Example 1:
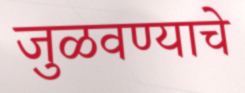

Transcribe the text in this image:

जुळवण्याचे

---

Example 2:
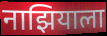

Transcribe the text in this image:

नाझियाला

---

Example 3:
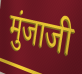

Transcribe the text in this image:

मुंजाजी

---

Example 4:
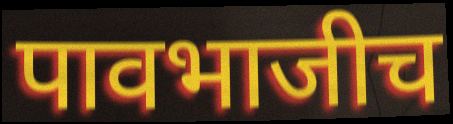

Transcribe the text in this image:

पावभाजीच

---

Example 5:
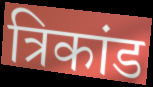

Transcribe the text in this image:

त्रिकांड